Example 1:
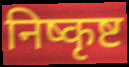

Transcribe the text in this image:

निष्कृष्ट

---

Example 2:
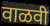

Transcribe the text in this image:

वाळवी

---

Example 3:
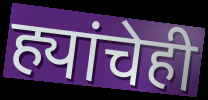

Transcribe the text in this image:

ह्यांचेही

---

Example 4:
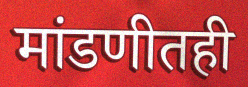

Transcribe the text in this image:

मांडणीतही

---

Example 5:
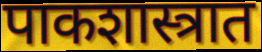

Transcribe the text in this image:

पाकशास्त्रात